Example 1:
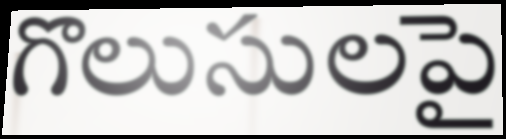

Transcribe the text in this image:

గొలుసులపై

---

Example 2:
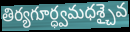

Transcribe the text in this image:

తిర్యగూర్ధ్వమధశ్చైవ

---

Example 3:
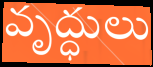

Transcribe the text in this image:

వృద్ధులు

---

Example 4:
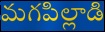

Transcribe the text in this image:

మగపిల్లాడి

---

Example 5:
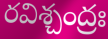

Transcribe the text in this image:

రవిశ్చంద్రః